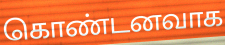
கொண்டனவாக